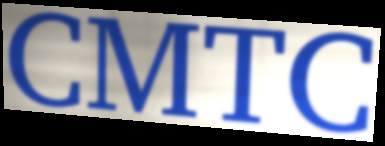
CMTC